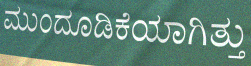
ಮುಂದೂಡಿಕೆಯಾಗಿತ್ತು